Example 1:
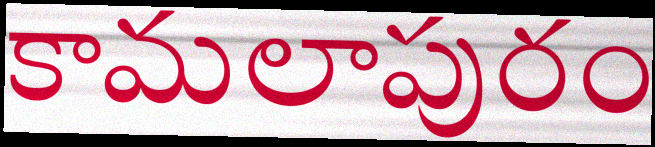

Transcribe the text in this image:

కామలాపురం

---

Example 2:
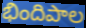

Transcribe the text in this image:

భిందిపాల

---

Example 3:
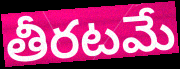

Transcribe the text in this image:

తీరటమే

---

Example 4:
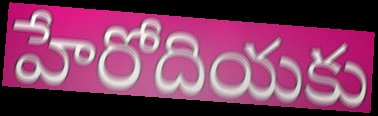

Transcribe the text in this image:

హేరోదియకు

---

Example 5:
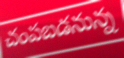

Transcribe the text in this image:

చంపబడనున్న